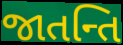
જાતન્તિ